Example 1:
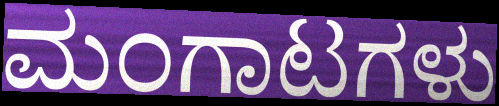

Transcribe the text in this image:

ಮಂಗಾಟಗಳು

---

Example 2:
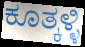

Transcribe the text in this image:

ಕೂತ್ಕಳ್ಳಿ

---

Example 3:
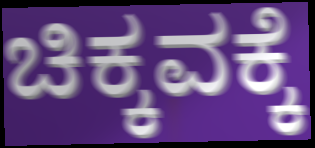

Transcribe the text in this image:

ಚಿಕ್ಕವಕ್ಕೆ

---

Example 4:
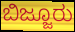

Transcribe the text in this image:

ಬಿಜ್ಜೂರು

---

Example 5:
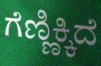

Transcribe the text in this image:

ಗೆಣ್ಣಿಕ್ಕಿದೆ